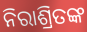
ନିରାଶ୍ରିତଙ୍କ